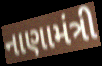
નાણામંત્રી